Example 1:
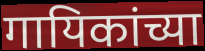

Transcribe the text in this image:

गायिकांच्या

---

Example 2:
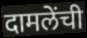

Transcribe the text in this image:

दामलेंची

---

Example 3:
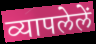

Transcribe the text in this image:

व्यापलेलें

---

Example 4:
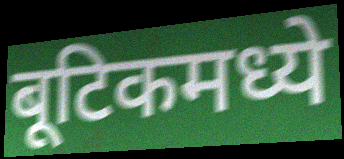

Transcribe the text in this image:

बूटिकमध्ये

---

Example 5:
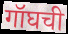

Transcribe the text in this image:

गॉघची